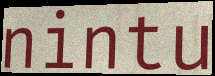
nintu